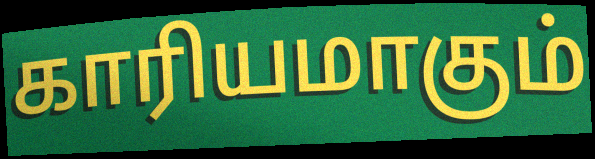
காரியமாகும்